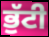
ਭੁੱਟੀ